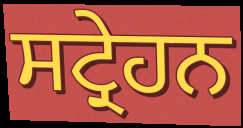
ਸਟ੍ਰੇਹਨ